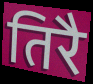
तिरै